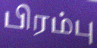
பிரம்பு